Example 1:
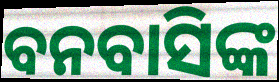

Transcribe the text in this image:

ବନବାସିଙ୍କ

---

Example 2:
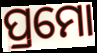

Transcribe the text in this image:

ପ୍ରମୋ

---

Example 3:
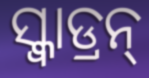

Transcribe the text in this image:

ସ୍କ୍ୱାଡ୍ରନ୍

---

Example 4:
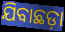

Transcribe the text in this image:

ଯିବାଛଡ଼ା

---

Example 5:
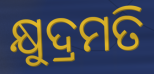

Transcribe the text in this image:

କ୍ଷୁଦ୍ରମତି